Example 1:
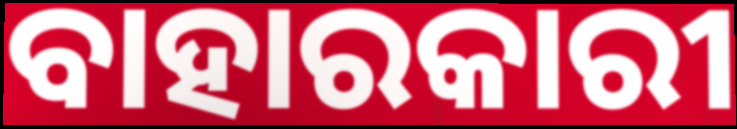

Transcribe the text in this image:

ବାହାରକାରୀ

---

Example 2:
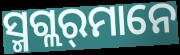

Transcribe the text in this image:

ସ୍ମଗ୍ଲର୍‌ମାନେ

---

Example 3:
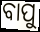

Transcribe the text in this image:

ବାପୁ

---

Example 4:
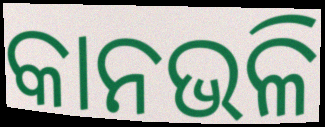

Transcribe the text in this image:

କାନଭଳି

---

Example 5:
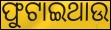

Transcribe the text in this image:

ଫୁଟାଇଥାଉ